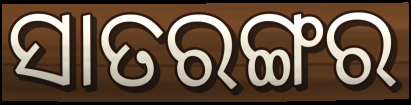
ସାତରଙ୍ଗର